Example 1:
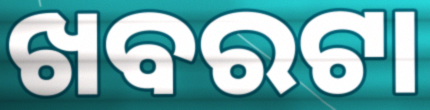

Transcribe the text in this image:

ଖବରଟା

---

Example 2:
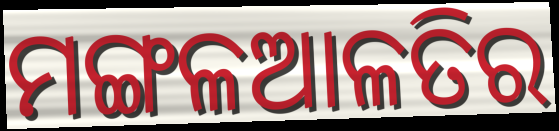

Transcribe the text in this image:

ମଙ୍ଗଳଆଳତିର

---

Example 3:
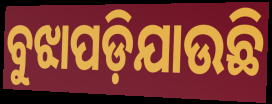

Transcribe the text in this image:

ବୁଝାପଡ଼ିଯାଉଛି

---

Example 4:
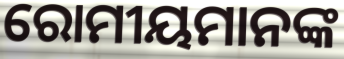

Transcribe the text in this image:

ରୋମୀୟମାନଙ୍କ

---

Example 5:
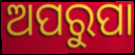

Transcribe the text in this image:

ଅପରୁପା